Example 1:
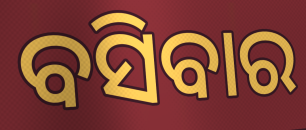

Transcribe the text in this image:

ବସିବାର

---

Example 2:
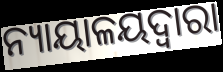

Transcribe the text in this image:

ନ୍ୟାୟାଳୟଦ୍ୱାରା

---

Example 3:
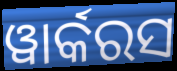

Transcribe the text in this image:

ୱାର୍କରସ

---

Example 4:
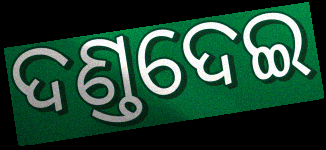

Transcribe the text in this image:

ଦଣ୍ଡଦେଇ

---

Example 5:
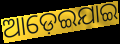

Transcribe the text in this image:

ଆଡ଼େଇଯାଇ